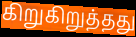
கிறுகிறுத்தது